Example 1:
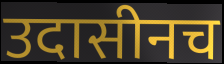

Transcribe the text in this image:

उदासीनच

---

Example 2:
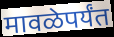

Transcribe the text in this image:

मावळेपर्यंत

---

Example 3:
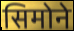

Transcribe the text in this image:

सिमोने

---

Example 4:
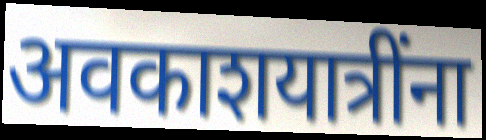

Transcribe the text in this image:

अवकाशयात्रींना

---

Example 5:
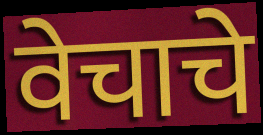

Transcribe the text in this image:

वेचाचे